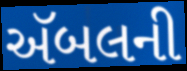
ઍબલની